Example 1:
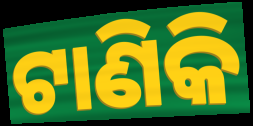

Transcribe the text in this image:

ଟାଣିକି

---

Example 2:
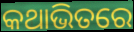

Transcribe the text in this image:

କଥାଭିତରେ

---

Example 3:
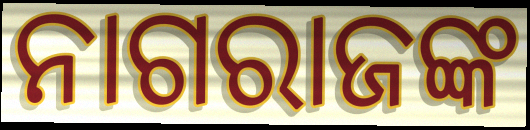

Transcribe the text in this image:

ନାଗରାଜଙ୍କ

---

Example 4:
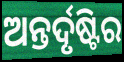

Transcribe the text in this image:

ଅନ୍ତର୍ଦୃଷ୍ଟିର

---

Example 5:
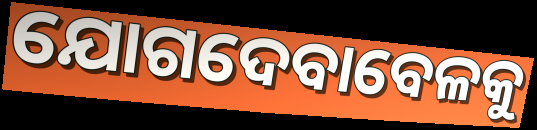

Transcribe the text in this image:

ଯୋଗଦେବାବେଳକୁ